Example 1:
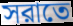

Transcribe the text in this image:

সরাতে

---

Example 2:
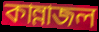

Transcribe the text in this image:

কান্নাজল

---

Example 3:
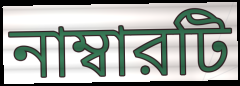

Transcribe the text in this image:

নাম্বারটি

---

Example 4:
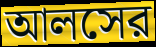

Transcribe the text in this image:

আলসের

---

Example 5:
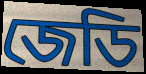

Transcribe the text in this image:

জেডি